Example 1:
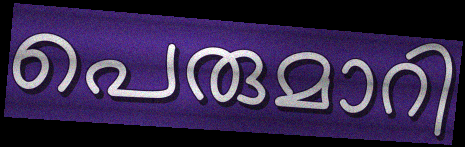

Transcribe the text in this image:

പെരുമാറി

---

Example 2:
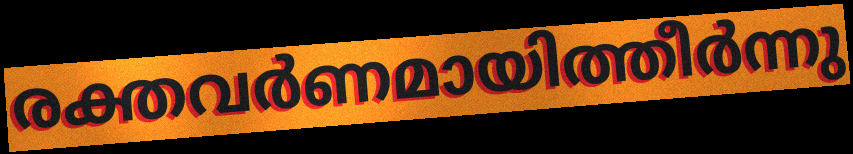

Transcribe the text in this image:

രക്തവർണമായിത്തീർന്നു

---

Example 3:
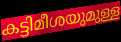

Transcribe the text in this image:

കട്ടിമീശയുമുള്ള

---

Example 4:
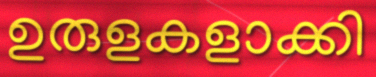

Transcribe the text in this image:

ഉരുളകളാക്കി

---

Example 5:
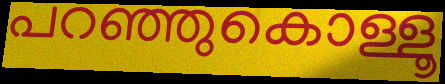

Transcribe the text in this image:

പറഞ്ഞുകൊള്ളൂ